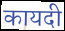
कायदी